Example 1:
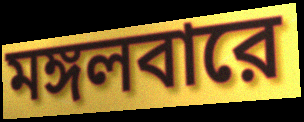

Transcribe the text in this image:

মঙ্গলবারে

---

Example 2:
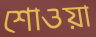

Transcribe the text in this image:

শোওয়া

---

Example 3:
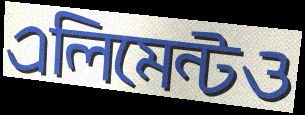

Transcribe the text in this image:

এলিমেন্টও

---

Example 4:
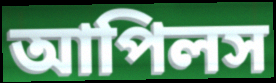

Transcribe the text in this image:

আপিলস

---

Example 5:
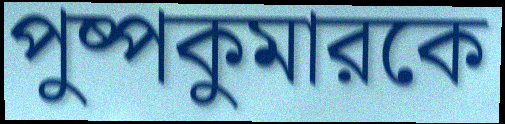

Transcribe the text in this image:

পুষ্পকুমারকে